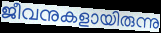
ജീവനുകളായിരുന്നു